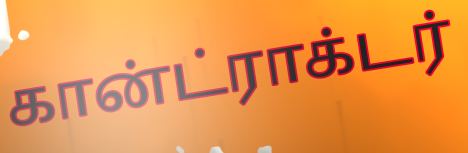
கான்ட்ராக்டர்